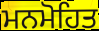
ਮਨਮੋਹਿਤ